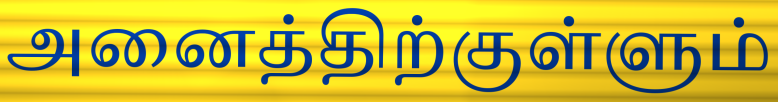
அனைத்திற்குள்ளும்